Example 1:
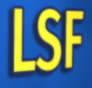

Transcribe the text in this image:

LSF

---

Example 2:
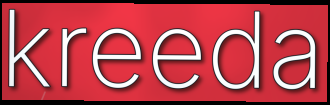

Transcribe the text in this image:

kreeda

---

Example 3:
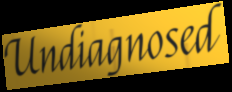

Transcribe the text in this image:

Undiagnosed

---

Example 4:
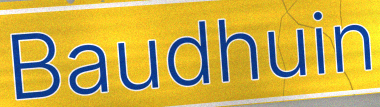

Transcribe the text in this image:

Baudhuin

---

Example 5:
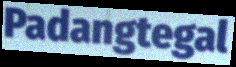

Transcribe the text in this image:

Padangtegal